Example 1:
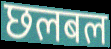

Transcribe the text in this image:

छलबल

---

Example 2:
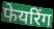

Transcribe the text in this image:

फेयरिंग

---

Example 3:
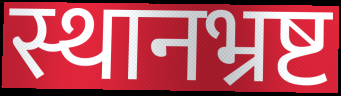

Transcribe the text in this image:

स्थानभ्रष्ट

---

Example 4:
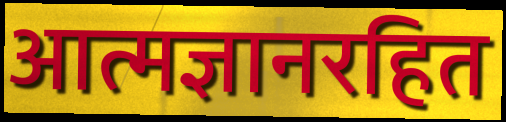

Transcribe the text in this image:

आत्मज्ञानरहित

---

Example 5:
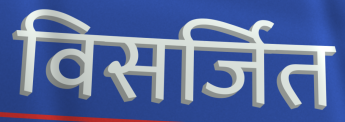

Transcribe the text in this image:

विसर्जित